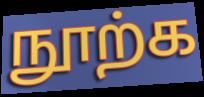
நூற்க